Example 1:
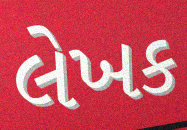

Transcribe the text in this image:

લેખક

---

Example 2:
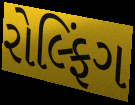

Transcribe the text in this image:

રોલ્ફિંગ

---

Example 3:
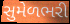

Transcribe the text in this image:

સુમેળભરી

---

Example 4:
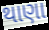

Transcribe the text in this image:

થાણા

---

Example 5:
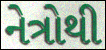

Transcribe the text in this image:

નેત્રોથી